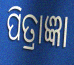
ପିତ୍ରାଜ୍ଞା